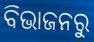
ବିଭାଜନରୁ